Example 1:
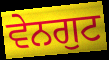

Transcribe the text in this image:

ਵੇਨਗੁਟ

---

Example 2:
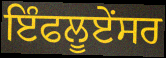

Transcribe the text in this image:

ਇੰਫਲੂਏਂਸਰ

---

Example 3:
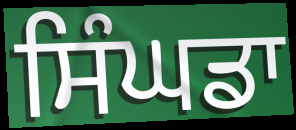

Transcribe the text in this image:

ਸਿੰਘਡਾ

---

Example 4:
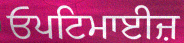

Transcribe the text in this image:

ਓਪਟਿਮਾਈਜ਼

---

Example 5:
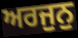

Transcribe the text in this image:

ਅਰਜੁਨੁ